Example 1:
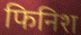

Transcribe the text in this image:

फिनिश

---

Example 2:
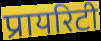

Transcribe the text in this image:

प्रायरिटी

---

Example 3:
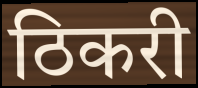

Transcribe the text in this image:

ठिकरी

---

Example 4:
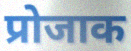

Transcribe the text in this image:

प्रोजाक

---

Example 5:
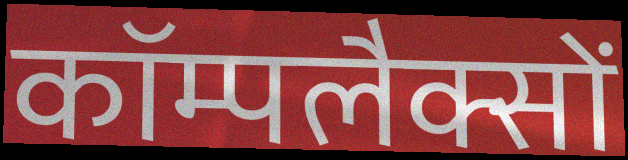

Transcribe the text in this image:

कॉम्पलैक्सों